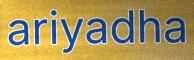
ariyadha